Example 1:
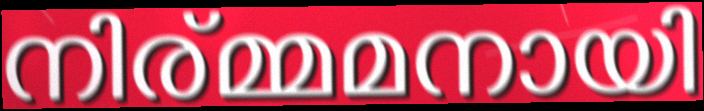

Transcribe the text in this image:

നിര്മ്മമനായി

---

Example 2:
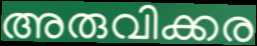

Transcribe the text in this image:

അരുവിക്കര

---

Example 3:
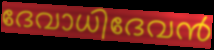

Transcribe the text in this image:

ദേവാധിദേവൻ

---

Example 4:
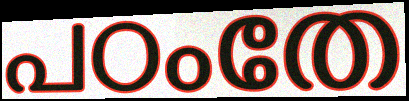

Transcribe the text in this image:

പഠംതേ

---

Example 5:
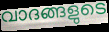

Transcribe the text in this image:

വാദങ്ങളുടെ